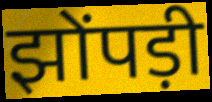
झोंपड़ी